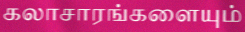
கலாசாரங்களையும்